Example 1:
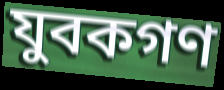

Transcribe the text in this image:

যুবকগণ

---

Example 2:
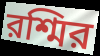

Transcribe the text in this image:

রশ্মির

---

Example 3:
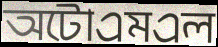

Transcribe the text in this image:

অটোএমএল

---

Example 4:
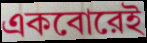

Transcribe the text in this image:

একবোরেই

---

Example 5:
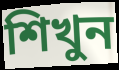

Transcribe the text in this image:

শিখুন